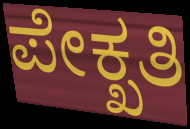
ಪೇಕ್ಖತಿ